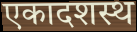
एकादशस्थ